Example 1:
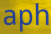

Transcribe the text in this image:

aph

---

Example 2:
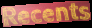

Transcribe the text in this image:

Recents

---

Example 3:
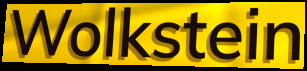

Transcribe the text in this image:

Wolkstein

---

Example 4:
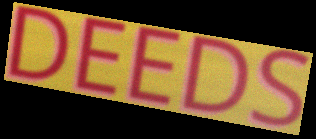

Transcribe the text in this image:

DEEDS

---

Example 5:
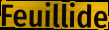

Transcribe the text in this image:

Feuillide